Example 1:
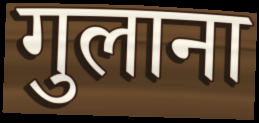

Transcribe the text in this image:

गुलाना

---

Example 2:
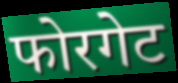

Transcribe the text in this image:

फोरगेट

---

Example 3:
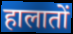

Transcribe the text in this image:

हालातों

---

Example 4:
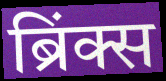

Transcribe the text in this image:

ब्रिंक्स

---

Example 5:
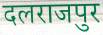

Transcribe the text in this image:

दलराजपुर